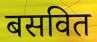
बसवित